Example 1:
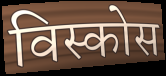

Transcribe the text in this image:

विस्कोस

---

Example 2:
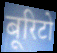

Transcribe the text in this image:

बूरिटो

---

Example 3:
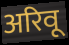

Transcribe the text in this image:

अरिवू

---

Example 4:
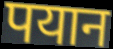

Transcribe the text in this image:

पयान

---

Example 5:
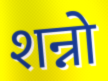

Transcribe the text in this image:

शन्नो